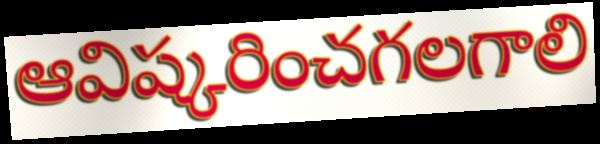
ఆవిష్కరించగలగాలి